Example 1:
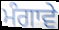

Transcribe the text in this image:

ਮੰਗਾਵੇ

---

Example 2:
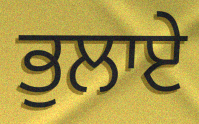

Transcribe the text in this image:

ਭੁਲਾਏ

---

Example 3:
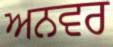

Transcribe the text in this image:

ਅਨਵਰ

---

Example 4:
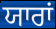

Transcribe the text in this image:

ਯਾਰਾਂ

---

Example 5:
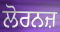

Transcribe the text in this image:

ਲੋਰਨਜ਼